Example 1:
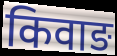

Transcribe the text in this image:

किवाङ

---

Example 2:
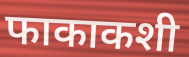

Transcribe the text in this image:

फाकाकशी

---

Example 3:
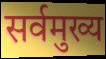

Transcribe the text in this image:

सर्वमुख्य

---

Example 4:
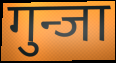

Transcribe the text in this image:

गुन्जा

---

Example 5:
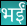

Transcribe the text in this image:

भईं